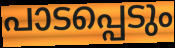
പാടപ്പെടും